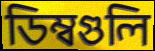
ডিম্বগুলি